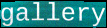
gallery